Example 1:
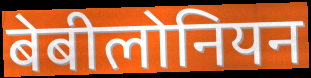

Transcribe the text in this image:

बेबीलोनियन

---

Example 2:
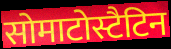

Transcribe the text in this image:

सोमाटोस्टैटिन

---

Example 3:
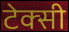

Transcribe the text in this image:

टेक्‍सी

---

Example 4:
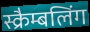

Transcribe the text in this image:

स्क्रैम्बलिंग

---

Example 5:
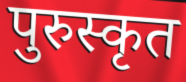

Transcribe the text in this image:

पुरुस्कृत